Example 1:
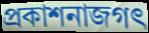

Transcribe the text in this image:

প্রকাশনাজগৎ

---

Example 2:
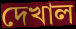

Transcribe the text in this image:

দেখাল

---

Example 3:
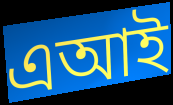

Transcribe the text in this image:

এআই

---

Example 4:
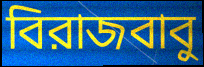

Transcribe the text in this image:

বিরাজবাবু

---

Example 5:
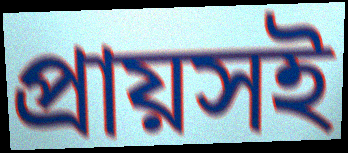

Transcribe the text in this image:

প্রায়সই